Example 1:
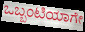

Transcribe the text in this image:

ಒಬ್ಬಂಟಿಯಾಗೇ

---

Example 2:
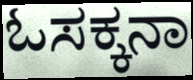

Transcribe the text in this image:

ಓಸಕ್ಕನಾ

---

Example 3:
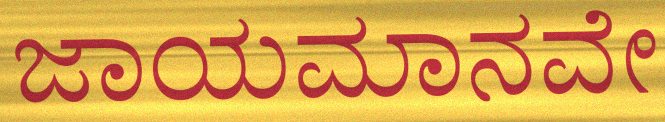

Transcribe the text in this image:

ಜಾಯಮಾನವೇ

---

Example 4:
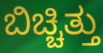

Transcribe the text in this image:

ಬಿಚ್ಚಿತ್ತು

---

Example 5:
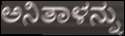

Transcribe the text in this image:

ಅನಿತಾಳನ್ನು